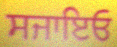
ਸਜਾਇਓ